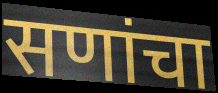
सणांचा